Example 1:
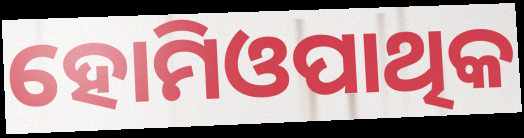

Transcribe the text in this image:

ହୋମିଓପାଥିକ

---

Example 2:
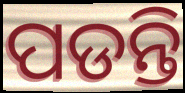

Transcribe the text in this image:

ପଡନ୍ତି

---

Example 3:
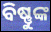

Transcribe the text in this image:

ବିଷ୍ଣୁଙ୍କ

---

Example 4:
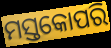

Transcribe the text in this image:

ମସ୍ତକୋପରି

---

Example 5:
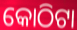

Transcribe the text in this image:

କୋଠିଟା